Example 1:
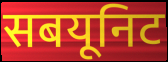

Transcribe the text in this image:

सबयूनिट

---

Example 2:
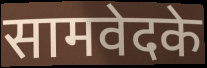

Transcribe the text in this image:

सामवेदके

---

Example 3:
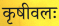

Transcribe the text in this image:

कृषीवलः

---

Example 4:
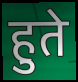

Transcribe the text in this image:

हुते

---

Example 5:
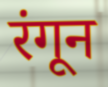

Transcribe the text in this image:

रंगून